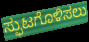
ಸ್ಫುಟಗೊಳಿಸಲು